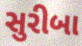
સુરીબા